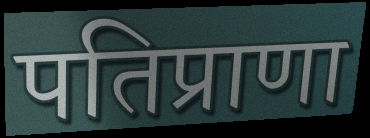
पतिप्राणा